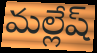
మల్లేష్